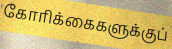
கோரிக்கைகளுக்குப்